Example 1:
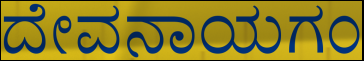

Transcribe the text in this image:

ದೇವನಾಯಗಂ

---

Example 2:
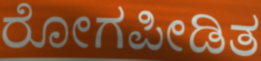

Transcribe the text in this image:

ರೋಗಪೀಡಿತ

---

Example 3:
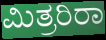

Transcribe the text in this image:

ಮಿತ್ರರಿರಾ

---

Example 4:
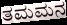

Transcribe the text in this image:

ತಮಮನ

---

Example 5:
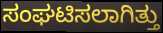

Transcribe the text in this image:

ಸಂಘಟಿಸಲಾಗಿತ್ತು